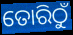
ତୋରିଠୁଁ